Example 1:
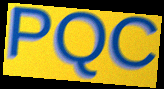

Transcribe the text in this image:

PQC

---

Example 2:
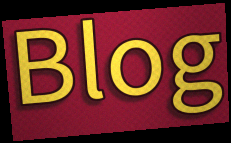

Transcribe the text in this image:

Blog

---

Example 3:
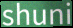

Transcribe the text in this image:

shuni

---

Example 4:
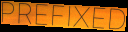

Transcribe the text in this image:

PREFIXED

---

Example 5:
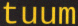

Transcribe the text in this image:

tuum